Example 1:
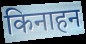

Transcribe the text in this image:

किनाहन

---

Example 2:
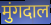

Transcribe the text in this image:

मुंगदाल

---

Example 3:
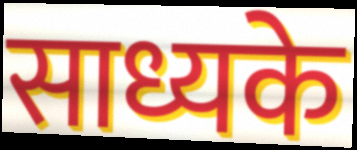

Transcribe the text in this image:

साध्यके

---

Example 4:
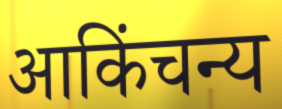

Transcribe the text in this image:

आकिंचन्य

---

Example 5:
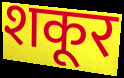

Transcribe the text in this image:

शकूर